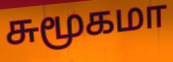
சுமூகமா